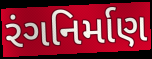
રંગનિર્માણ